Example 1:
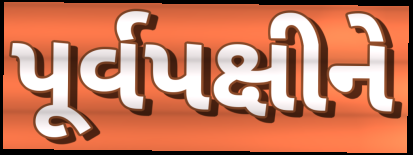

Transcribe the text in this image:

પૂર્વપક્ષીને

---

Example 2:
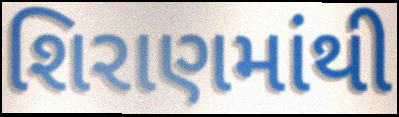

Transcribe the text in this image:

શિરાણમાંથી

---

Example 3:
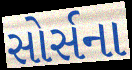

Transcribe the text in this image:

સોર્સના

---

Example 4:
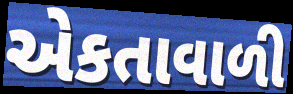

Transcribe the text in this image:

એકતાવાળી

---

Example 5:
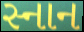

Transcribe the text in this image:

સ્નાન